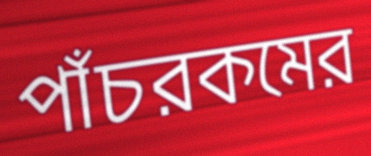
পাঁচরকমের